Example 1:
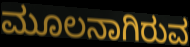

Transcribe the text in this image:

ಮೂಲನಾಗಿರುವ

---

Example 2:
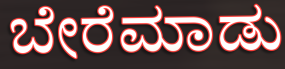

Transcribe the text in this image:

ಬೇರೆಮಾಡು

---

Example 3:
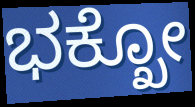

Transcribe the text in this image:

ಭಕ್ಖೋ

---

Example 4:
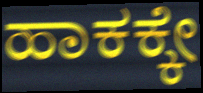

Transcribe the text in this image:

ಹಾಕಕ್ಕೇ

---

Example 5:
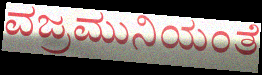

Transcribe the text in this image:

ವಜ್ರಮುನಿಯಂತೆ